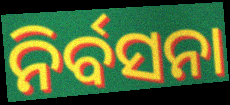
ନିର୍ବସନା